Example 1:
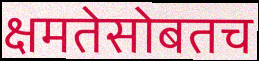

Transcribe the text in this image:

क्षमतेसोबतच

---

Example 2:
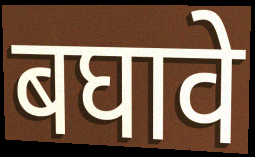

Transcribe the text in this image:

बघावे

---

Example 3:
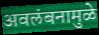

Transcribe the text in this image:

अवलंबनामुळे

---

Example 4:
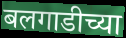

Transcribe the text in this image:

बलगाडीच्या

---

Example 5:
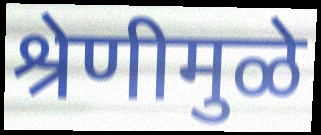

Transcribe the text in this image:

श्रेणीमुळे